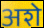
अशे